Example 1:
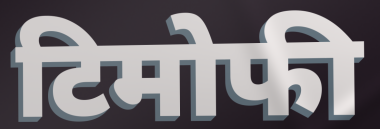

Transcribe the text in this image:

टिमोफी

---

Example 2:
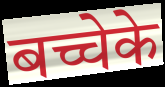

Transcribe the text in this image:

बच्चेके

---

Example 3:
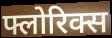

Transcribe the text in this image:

फ्लोरिक्स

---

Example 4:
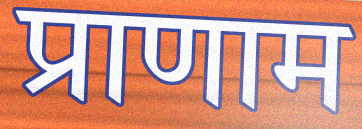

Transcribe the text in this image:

प्राणाम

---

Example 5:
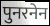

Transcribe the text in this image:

पुनरनेन